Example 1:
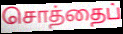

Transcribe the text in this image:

சொத்தைப்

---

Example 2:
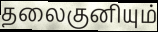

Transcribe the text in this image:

தலைகுனியும்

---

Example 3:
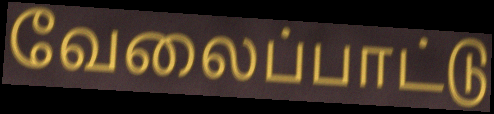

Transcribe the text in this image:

வேலைப்பாட்டு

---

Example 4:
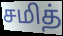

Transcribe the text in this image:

சமித்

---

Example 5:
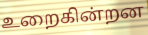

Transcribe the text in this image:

உறைகின்றன